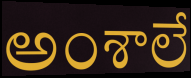
అంశాలే